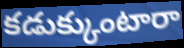
కడుక్కుంటారా